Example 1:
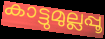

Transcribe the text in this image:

കാട്ടുമുല്ലപ്പൂ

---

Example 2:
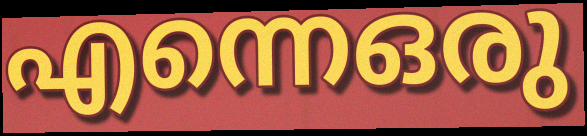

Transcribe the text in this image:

എന്നെഒരു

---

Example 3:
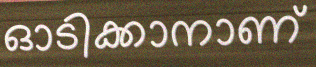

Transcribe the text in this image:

ഓടിക്കാനാണ്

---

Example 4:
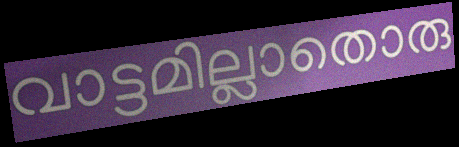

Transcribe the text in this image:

വാട്ടമില്ലാതൊരു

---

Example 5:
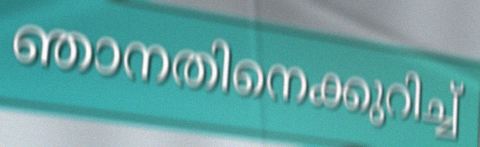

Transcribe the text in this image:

ഞാനതിനെക്കുറിച്ച്